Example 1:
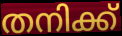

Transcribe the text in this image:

തനിക്ക്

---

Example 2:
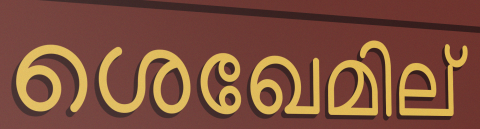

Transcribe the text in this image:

ശെഖേമില്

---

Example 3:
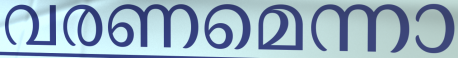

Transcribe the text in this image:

വരണമെന്നാ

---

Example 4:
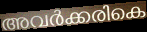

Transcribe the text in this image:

അവർക്കരികെ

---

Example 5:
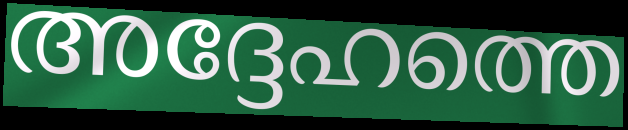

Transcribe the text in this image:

അദ്ദേഹത്തെ